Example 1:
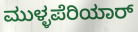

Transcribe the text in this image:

ಮುಳ್ಳಪೆರಿಯಾರ್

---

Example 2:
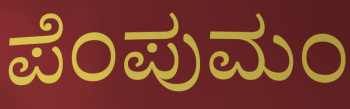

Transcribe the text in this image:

ಪೆಂಪುಮಂ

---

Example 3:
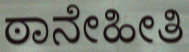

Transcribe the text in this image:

ಠಾನೇಹೀತಿ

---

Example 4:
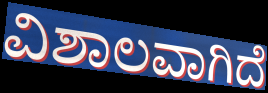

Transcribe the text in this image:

ವಿಶಾಲವಾಗಿದೆ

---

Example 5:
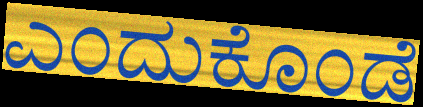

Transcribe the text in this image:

ಎಂದುಕೊಂಡೆ